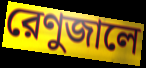
রেণুজালে